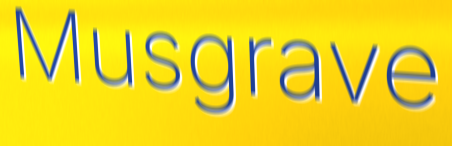
Musgrave